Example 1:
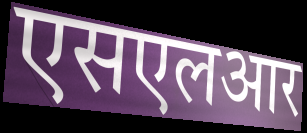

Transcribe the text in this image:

एसएलआर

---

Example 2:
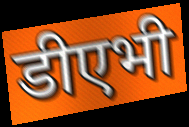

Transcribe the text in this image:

डीएभी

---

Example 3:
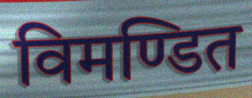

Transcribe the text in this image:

विमण्डित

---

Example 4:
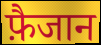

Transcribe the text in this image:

फ़ैजान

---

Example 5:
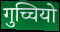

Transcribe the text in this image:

गुच्चियो